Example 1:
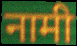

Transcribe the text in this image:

नामी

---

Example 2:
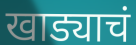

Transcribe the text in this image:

खाड्याचं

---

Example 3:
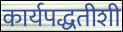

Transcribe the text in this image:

कार्यपद्धतीशी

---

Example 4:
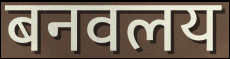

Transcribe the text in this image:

बनवलय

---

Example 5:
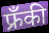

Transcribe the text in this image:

फ्रँकी